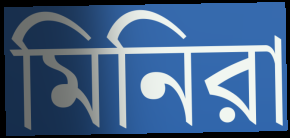
মিনিরা